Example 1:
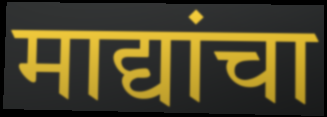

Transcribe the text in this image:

माद्यांचा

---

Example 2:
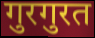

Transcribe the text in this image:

गुरगुरत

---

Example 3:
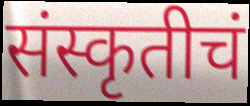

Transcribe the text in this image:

संस्कृतीचं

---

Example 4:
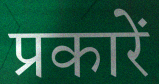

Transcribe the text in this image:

प्रकारें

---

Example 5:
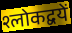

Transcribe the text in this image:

श्लोकद्वयें